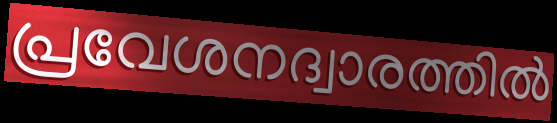
പ്രവേശനദ്വാരത്തിൽ